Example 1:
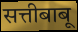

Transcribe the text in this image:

सत्तीबाबू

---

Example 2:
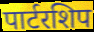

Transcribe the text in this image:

पार्टरशिप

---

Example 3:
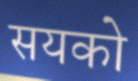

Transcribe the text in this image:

सयको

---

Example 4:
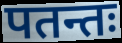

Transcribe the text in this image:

पतन्तः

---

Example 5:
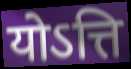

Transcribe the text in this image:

योऽत्ति